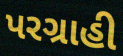
પરગ્રાહી